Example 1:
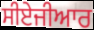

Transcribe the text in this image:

ਸੀਏਜੀਆਰ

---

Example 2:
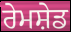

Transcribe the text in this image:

ਰੇਮਸ਼ੇਡ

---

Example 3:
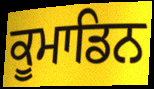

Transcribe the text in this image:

ਕੂਮਾਡਿਨ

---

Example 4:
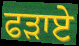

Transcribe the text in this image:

ਫੜਾਏ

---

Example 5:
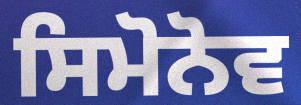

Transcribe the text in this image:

ਸਿਮੋਨੋਵ